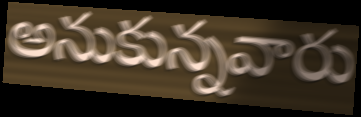
అనుకున్నవారు